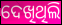
ଦେଖିଥିଲି